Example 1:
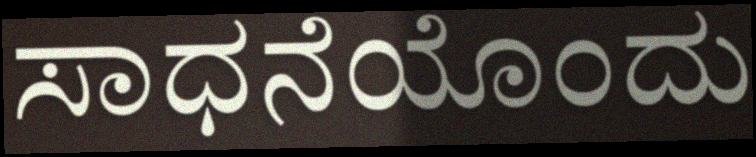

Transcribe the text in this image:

ಸಾಧನೆಯೊಂದು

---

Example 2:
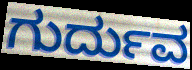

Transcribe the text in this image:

ಗುರ್ದುವ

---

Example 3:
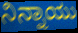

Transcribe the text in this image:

ನಿನ್ನಾಯು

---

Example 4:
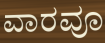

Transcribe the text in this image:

ವಾರವೂ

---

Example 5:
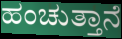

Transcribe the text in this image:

ಹಂಚುತ್ತಾನೆ